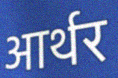
आर्थर